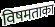
विषमताका